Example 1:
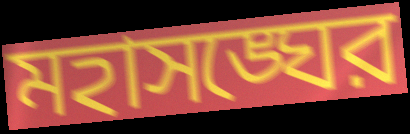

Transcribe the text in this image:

মহাসঙ্ঘের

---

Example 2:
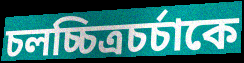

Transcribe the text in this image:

চলচ্চিত্রচর্চাকে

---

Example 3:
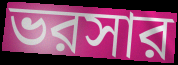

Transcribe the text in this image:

ভরসার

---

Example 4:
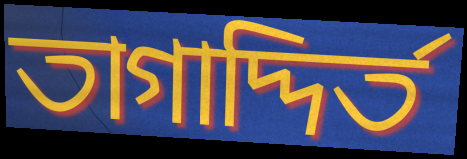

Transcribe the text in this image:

তাগাদ্দির্ত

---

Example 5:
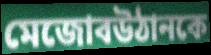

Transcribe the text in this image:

মেজোবউঠানকে